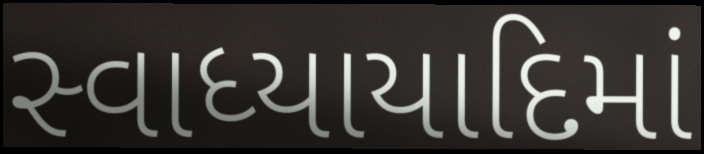
સ્વાધ્યાયાદિમાં